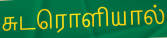
சுடரொளியால்